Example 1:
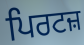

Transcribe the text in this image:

ਪਿਰਟਜ਼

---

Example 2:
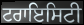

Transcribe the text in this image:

ਟਰਾਇਸਿਟੀ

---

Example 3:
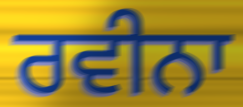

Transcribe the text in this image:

ਰਵੀਨਾ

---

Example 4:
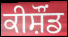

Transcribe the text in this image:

ਕੀਸ਼ੌਂਡ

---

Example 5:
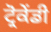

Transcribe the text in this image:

ਟ੍ਰੋਕੇਂਡੀ